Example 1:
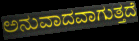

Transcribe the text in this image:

ಅನುವಾದವಾಗುತ್ತದೆ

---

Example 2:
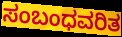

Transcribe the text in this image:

ಸಂಬಂಧವರಿತ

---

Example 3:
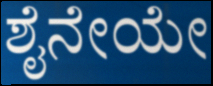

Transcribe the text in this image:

ಶೈನೇಯೇ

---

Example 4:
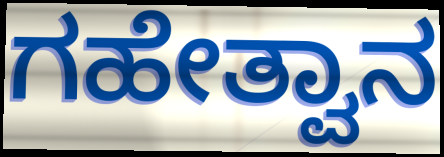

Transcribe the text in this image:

ಗಹೇತ್ವಾನ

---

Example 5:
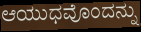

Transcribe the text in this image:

ಆಯುಧವೊಂದನ್ನು